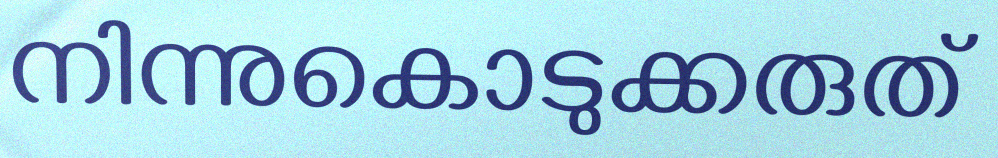
നിന്നുകൊടുക്കരുത്